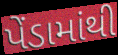
પેંડામાંથી